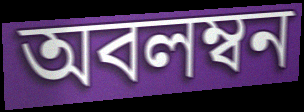
অবলম্বন